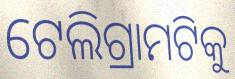
ଟେଲିଗ୍ରାମଟିକୁ